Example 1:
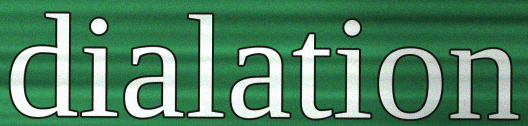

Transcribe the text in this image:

dialation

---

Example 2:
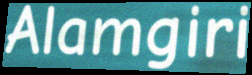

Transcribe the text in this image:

Alamgiri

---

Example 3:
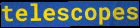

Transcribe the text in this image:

telescopes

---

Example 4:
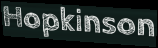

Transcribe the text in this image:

Hopkinson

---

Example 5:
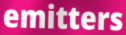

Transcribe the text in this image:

emitters